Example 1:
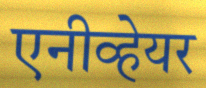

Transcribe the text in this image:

एनीव्हेयर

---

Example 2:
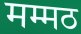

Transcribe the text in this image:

मम्मठ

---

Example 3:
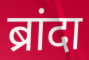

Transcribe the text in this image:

ब्रांदा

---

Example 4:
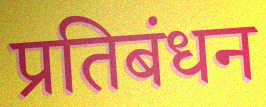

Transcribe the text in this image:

प्रतिबंधन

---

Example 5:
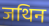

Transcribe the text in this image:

जथिन